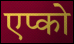
एप्को